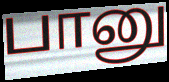
பானு